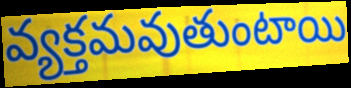
వ్యక్తమవుతుంటాయి